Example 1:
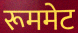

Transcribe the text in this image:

रूममेट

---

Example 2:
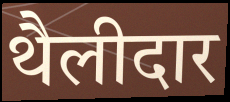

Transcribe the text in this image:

थैलीदार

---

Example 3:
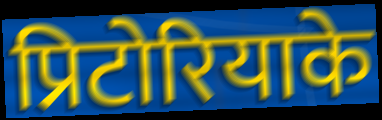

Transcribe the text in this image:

प्रिटोरियाके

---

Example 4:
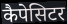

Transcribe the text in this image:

कैपेसिटर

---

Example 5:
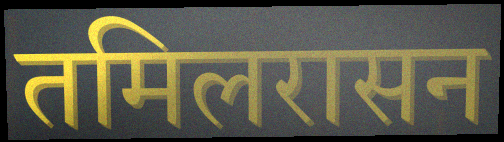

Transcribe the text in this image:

तमिलरासन